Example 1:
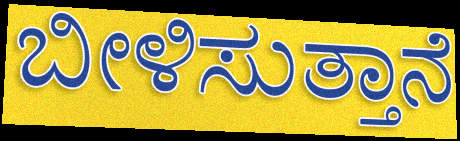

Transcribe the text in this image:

ಬೀಳಿಸುತ್ತಾನೆ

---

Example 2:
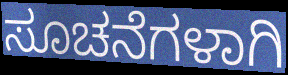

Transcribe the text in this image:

ಸೂಚನೆಗಳಾಗಿ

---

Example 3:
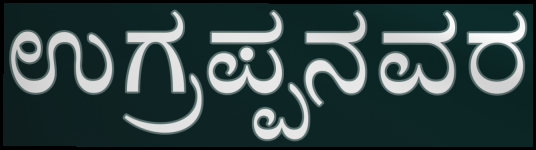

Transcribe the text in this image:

ಉಗ್ರಪ್ಪನವರ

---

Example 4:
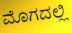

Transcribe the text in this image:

ಮೊಗದಲ್ಲಿ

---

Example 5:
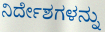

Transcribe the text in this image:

ನಿರ್ದೇಶಗಳನ್ನು